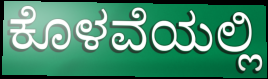
ಕೊಳವೆಯಲ್ಲಿ